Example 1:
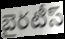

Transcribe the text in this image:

బైరటీస్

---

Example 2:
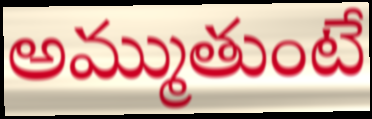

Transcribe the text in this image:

అమ్ముతుంటే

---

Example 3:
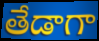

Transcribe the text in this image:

తేడాగా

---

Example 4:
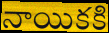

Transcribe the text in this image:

నాయికకి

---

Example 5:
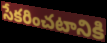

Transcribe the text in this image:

సేకరించటానికి